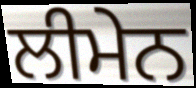
ਲੀਮੇਨ